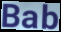
Bab